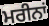
ਮਰੀਨਾਂ